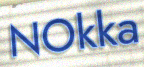
NOkka